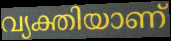
വ്യക്തിയാണ്